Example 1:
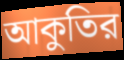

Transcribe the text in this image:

আকুতির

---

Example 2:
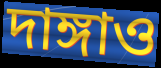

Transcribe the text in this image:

দাঙ্গাও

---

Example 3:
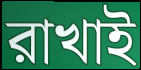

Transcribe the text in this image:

রাখাই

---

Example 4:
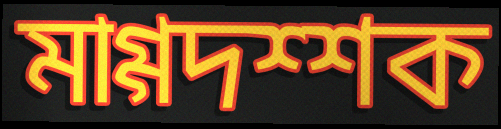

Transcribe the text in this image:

মাগ্গদশ্শক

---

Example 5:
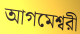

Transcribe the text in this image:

আগমেশ্বরী